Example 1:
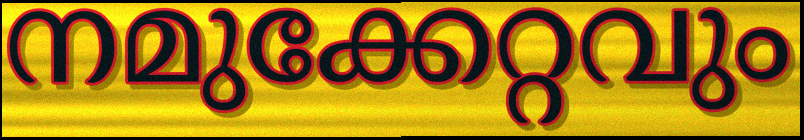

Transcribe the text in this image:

നമുക്കേറ്റവും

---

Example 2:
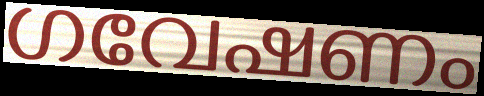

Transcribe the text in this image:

ഗവേഷണം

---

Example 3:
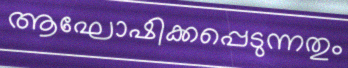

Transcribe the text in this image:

ആഘോഷിക്കപ്പെടുന്നതും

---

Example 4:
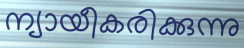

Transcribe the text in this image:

ന്യായീകരിക്കുന്നു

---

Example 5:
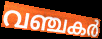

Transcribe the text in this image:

വഞ്ചകർ